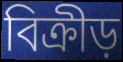
বিক্রীড়